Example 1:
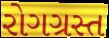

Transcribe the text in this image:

રોગગ્રસ્ત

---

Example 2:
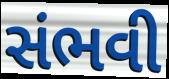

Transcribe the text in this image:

સંભવી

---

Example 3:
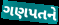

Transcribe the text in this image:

ગણપતને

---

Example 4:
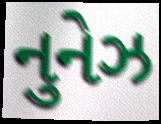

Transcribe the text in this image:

નુનેઝ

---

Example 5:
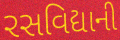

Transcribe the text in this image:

રસવિદ્યાની